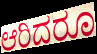
ಆರಿದರೂ